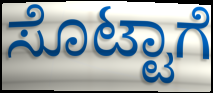
ಸೊಟ್ಟಾಗೆ